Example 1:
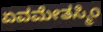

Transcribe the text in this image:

ಏವಮೇತಸ್ಮಿಂ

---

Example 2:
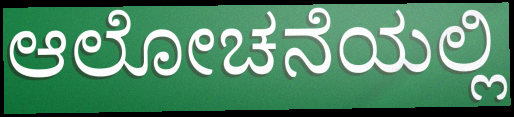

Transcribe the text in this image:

ಆಲೋಚನೆಯಲ್ಲಿ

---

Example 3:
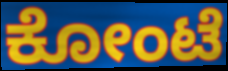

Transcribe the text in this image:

ಕೋಂಟೆ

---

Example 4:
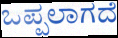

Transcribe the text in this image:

ಒಪ್ಪಲಾಗದೆ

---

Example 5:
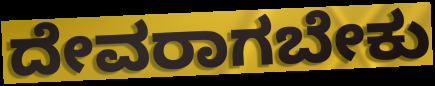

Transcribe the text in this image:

ದೇವರಾಗಬೇಕು